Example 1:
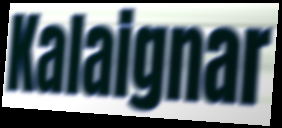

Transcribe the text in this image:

Kalaignar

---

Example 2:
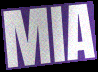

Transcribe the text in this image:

MIA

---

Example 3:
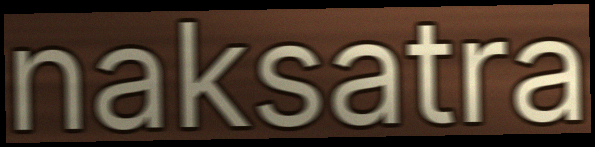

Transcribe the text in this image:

naksatra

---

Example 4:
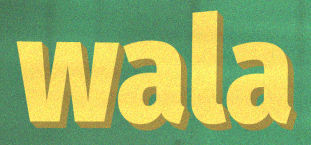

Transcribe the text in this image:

wala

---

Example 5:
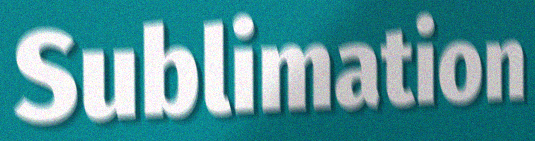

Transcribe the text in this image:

Sublimation